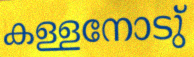
കള്ളനോടു്